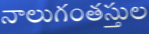
నాలుగంతస్తుల